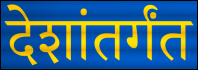
देशांतर्गंत